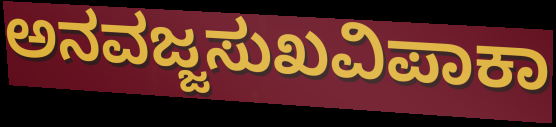
ಅನವಜ್ಜಸುಖವಿಪಾಕಾ